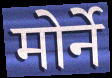
मोर्ने